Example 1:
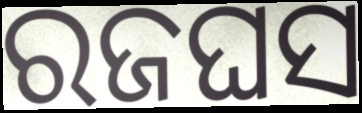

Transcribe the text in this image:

ରଜଘସ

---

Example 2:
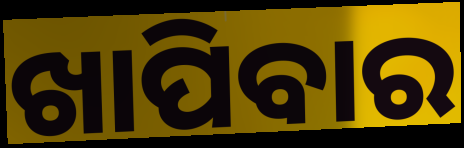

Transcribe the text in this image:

ଖାପିବାର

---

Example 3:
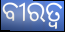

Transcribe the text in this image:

ବୀରତ୍ଵ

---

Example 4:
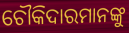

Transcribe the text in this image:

ଚୌକିଦାରମାନଙ୍କୁ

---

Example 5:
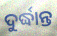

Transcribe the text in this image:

ଦୁର୍ଦ୍ଧାନ୍ତ